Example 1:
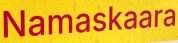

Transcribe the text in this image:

Namaskaara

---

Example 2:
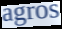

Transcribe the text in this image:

agros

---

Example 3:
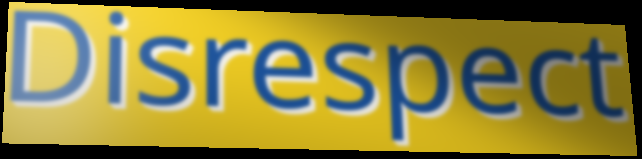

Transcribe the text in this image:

Disrespect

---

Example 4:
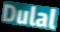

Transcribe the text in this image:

Dulal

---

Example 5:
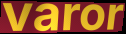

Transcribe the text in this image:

varor